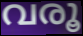
വരൂ